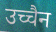
उच्चैन